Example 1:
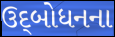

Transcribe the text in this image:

ઉદ્‌બોધનના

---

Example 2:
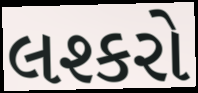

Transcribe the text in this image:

લશ્કરો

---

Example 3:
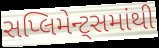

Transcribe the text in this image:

સપ્લિમેન્ટ્સમાંથી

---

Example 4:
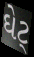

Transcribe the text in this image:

ઘેટ્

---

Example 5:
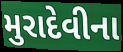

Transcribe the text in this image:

મુરાદેવીના